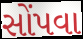
સોંપવા